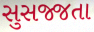
સુસજ્જતા